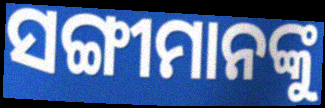
ସଙ୍ଗୀମାନଙ୍କୁ